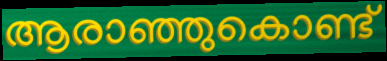
ആരാഞ്ഞുകൊണ്ട്